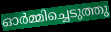
ഓർമ്മിച്ചെടുത്തു